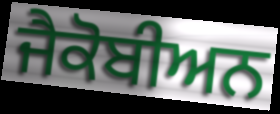
ਜੈਕੋਬੀਅਨ